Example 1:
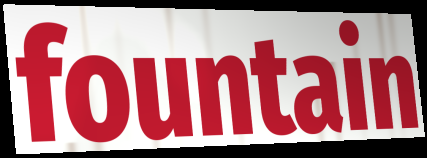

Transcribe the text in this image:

fountain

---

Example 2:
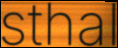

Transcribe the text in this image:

sthal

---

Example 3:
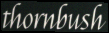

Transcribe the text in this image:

thornbush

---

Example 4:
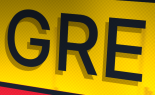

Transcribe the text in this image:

GRE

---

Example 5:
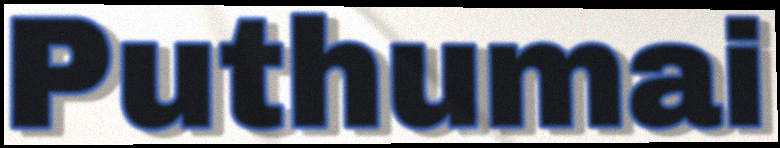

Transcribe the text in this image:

Puthumai